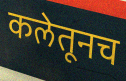
कलेतूनच